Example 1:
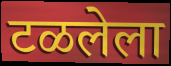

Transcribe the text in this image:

टळलेला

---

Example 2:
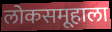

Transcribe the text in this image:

लोकसमूहाला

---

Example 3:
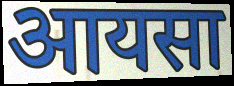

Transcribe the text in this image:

आयसा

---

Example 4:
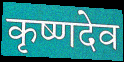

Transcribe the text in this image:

कृष्णदेव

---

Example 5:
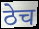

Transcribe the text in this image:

ठेच